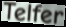
Telfer